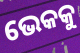
ଭେକକୁ